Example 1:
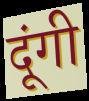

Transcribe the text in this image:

दूंगी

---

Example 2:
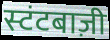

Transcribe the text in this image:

स्टंटबाज़ी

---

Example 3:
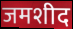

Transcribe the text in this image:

जमशीद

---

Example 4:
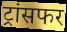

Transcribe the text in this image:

ट्रांसफर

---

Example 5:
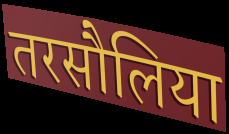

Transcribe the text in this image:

तरसौलिया